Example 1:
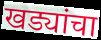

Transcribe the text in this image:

खड्यांचा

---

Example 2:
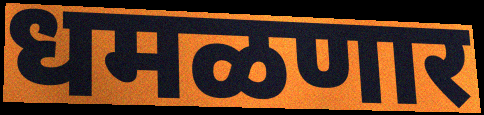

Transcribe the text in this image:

धमळणार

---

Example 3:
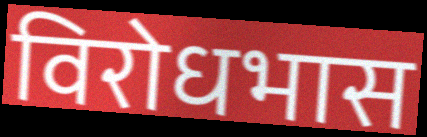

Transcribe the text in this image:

विरोधभास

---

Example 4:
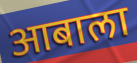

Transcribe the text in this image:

आबाला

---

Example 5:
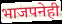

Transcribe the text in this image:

भाजपनेही